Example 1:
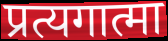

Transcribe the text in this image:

प्रत्यगात्मा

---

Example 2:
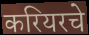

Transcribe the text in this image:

करियरचे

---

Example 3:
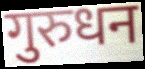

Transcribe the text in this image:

गुरुधन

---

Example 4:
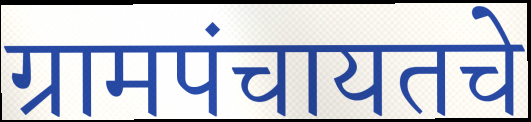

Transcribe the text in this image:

ग्रामपंचायतचे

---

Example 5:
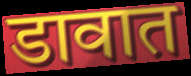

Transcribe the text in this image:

डावात